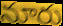
నూరు